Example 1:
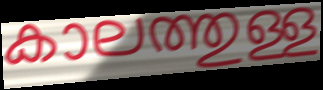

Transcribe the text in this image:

കാലത്തുള്ള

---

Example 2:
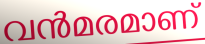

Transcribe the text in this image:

വൻമരമാണ്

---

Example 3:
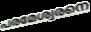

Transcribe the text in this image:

പരമേശ്വരനെ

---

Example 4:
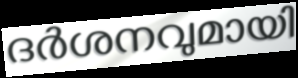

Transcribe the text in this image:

ദർശനവുമായി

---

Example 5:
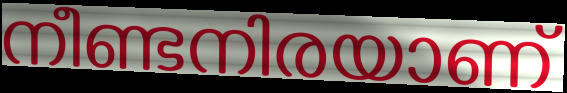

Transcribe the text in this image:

നീണ്ടനിരയാണ്